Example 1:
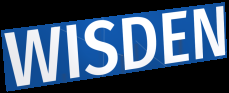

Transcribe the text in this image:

WISDEN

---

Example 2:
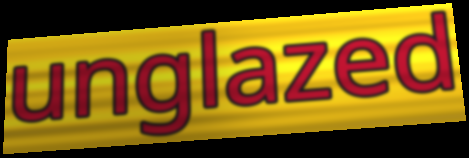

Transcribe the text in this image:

unglazed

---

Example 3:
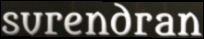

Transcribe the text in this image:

surendran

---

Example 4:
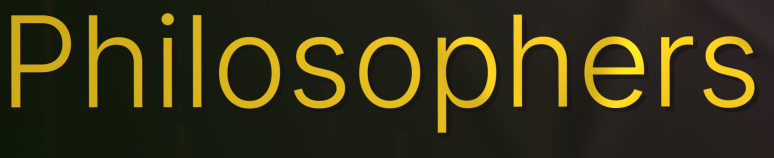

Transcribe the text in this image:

Philosophers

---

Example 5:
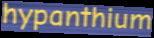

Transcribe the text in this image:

hypanthium